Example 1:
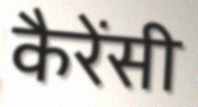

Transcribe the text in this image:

कैरेंसी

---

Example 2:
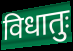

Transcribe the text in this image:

विधातुः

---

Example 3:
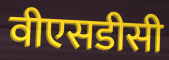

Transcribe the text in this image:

वीएसडीसी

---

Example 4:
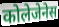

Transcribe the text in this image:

कोलेजेनेस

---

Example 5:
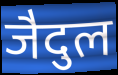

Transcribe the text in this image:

जैदुल